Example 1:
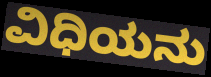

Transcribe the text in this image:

ವಿಧಿಯನು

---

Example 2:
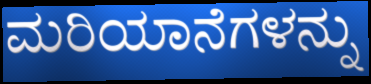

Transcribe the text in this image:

ಮರಿಯಾನೆಗಳನ್ನು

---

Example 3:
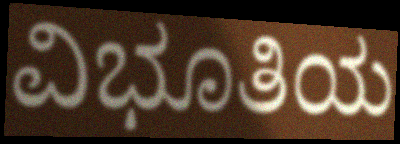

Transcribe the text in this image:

ವಿಭೂತಿಯ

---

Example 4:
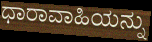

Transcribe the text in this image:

ಧಾರಾವಾಹಿಯನ್ನು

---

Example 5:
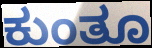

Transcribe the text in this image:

ಕುಂತೂ